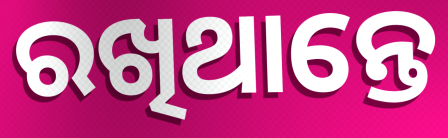
ରଖିଥାନ୍ତେ